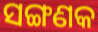
ସଙ୍ଗଣକ